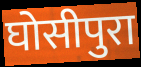
घोसीपुरा